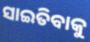
ସାଇତିବାକୁ